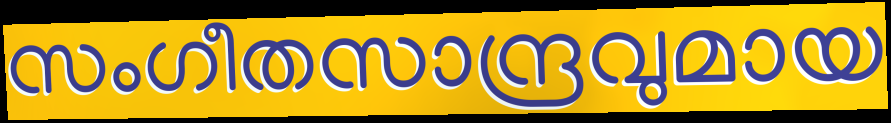
സംഗീതസാന്ദ്രവുമായ